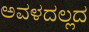
ಅವಳದಲ್ಲದ